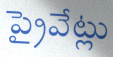
ప్రైవేట్లు